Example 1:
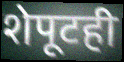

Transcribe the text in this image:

शेपूटही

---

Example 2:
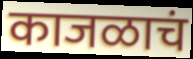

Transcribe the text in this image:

काजळाचं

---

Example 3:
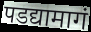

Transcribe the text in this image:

पडद्यामागं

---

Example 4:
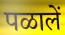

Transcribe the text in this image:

पळालें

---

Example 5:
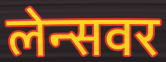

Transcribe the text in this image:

लेन्सवर